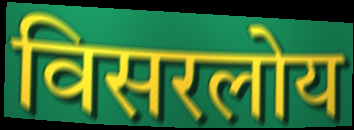
विसरलोय